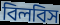
বিলবিস